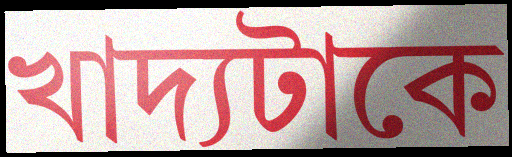
খাদ্যটাকে